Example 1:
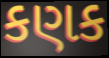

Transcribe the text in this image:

કણક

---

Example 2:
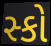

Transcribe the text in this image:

સ્કો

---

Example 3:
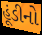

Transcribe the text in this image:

હૂંડીનો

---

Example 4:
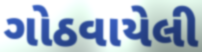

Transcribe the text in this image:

ગોઠવાયેલી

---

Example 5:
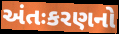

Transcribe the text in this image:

અંતઃકરણનો